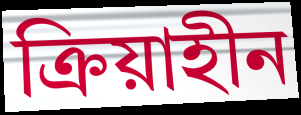
ক্রিয়াহীন